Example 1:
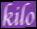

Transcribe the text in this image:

kilo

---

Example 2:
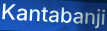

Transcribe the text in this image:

Kantabanji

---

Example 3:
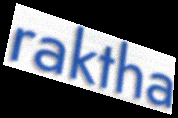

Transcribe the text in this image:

raktha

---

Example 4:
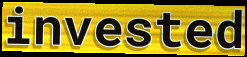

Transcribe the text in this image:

invested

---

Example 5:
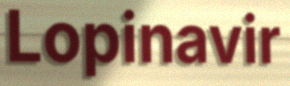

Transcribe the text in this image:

Lopinavir